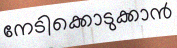
നേടിക്കൊടുക്കാൻ